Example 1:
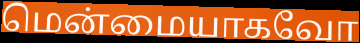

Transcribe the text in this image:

மென்மையாகவோ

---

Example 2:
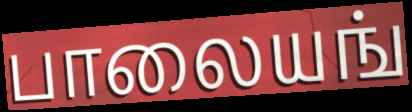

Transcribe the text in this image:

பாலையங்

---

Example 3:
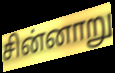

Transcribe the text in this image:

சின்னாறு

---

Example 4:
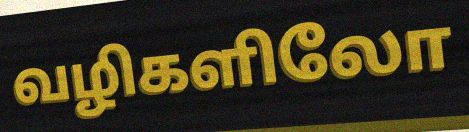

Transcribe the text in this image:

வழிகளிலோ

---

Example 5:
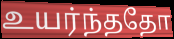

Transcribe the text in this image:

உயர்ந்ததோ